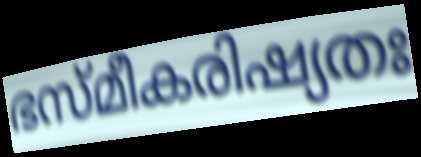
ഭസ്മീകരിഷ്യതഃ